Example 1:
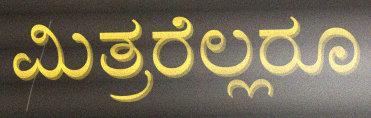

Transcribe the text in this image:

ಮಿತ್ರರೆಲ್ಲರೂ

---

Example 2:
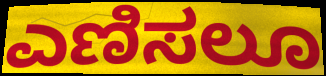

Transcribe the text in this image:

ಎಣಿಸಲೂ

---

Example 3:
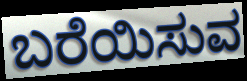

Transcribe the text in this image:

ಬರೆಯಿಸುವ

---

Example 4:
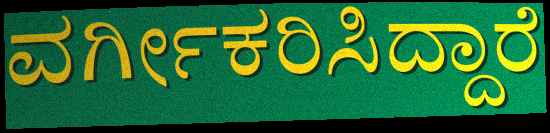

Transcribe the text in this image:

ವರ್ಗೀಕರಿಸಿದ್ದಾರೆ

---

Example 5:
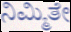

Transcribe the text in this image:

ನಿಮ್ಮಿತೇ